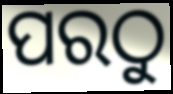
ପରଠୁ